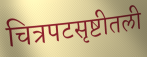
चित्रपटसृष्टीतली